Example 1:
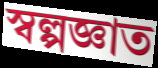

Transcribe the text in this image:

স্বল্পজ্ঞাত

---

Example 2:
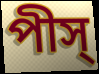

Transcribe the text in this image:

পীস্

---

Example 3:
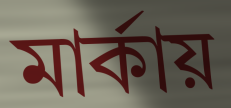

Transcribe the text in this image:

মার্কায়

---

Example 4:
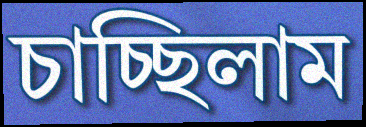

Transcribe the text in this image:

চাচ্ছিলাম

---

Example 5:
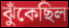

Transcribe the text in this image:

ঝুঁকেছিল